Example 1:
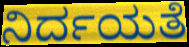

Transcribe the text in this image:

ನಿರ್ದಯತೆ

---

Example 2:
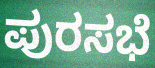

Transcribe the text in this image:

ಪುರಸಭೆ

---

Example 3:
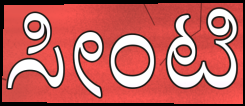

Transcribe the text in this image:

ಸೀಂಟಿ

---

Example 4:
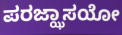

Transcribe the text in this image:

ಪರಜ್ಝಾಸಯೋ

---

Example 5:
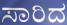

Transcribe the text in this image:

ಸಾರಿದ